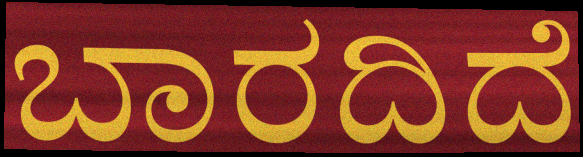
ಬಾರದಿದೆ